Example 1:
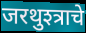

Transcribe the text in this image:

जरथुश्त्राचे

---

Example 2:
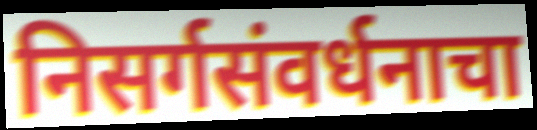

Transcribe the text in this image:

निसर्गसंवर्धनाचा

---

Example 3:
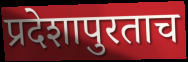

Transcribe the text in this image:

प्रदेशापुरताच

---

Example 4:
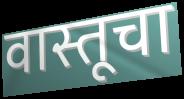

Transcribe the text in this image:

वास्तूचा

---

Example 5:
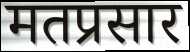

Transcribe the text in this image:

मतप्रसार